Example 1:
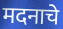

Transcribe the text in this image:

मदनाचे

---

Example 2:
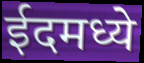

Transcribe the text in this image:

ईदमध्ये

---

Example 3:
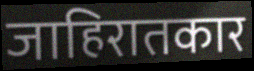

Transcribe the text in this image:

जाहिरातकार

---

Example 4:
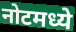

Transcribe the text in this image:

नोटमध्ये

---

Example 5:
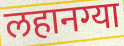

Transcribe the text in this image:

लहानग्या